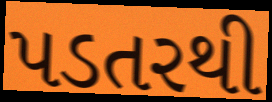
પડતરથી